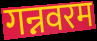
गन्नवरम